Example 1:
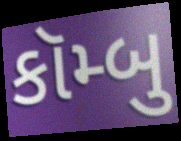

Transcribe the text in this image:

કૉમ્બુ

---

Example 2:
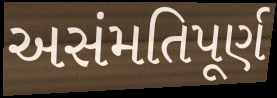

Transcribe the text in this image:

અસંમતિપૂર્ણ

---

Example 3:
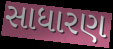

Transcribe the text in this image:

સાધારણ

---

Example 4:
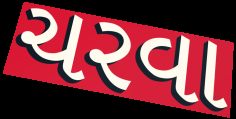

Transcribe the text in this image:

ચરવા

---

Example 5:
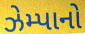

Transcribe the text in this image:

ઝેમ્પાનો